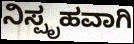
ನಿಸ್ಪೃಹವಾಗಿ